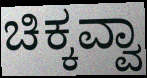
ಚಿಕ್ಕವ್ವಾ